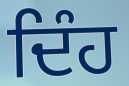
ਦਿੰਹ